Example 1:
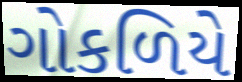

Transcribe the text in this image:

ગોકળિયે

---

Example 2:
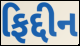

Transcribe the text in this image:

ફિદ્દીન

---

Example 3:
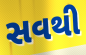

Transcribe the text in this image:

સવથી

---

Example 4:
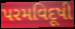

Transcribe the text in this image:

પરમવિદૂષી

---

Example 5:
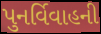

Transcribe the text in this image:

પુનર્વિવાહની